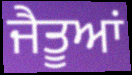
ਜੈਤੂਆਂ